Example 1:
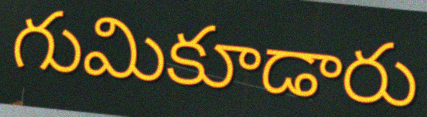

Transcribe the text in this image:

గుమికూడారు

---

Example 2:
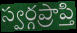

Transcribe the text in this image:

స్వర్గప్రాప్తి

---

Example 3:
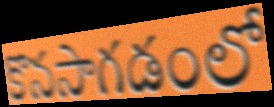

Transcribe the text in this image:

కొనసాగడంలో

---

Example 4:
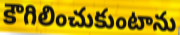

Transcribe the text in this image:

కౌగిలించుకుంటాను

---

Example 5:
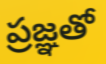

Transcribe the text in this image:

ప్రజ్ఞతో